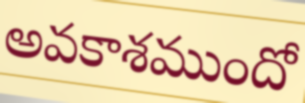
అవకాశముందో